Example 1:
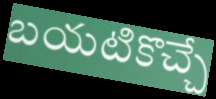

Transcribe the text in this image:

బయటికొచ్చే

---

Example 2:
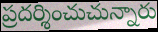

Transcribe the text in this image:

ప్రదర్శించుచున్నారు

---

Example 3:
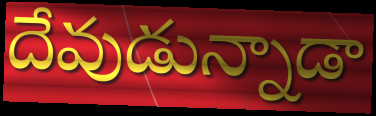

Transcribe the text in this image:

దేవుడున్నాడా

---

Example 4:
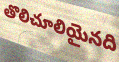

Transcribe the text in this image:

తొలిచూలియైనది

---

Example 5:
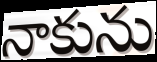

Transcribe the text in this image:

నాకును